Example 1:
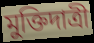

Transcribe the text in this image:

মুক্তিদাত্রী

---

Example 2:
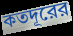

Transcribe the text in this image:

কতদূরের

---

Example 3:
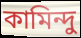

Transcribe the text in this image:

কামিন্দু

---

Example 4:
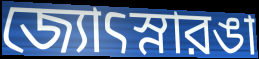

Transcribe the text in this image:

জ্যোৎস্নারঙা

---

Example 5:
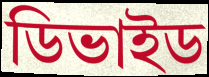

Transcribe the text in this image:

ডিভাইড